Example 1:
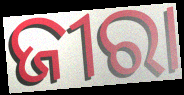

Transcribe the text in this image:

ଜୀରା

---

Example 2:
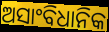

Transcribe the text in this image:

ଅସାଂବିଧାନିକ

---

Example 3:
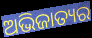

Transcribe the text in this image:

ଅଭିଜାତ୍ୟର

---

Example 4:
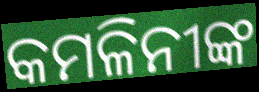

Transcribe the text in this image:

କମଳିନୀଙ୍କ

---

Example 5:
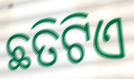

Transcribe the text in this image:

ଛତିଟିଏ